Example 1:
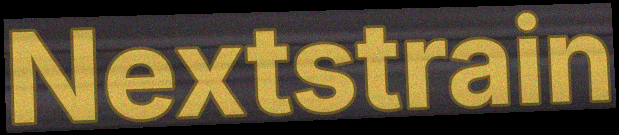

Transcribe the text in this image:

Nextstrain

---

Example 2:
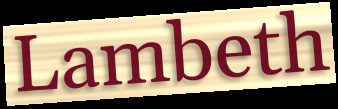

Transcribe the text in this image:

Lambeth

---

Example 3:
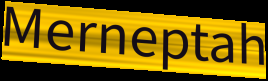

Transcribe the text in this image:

Merneptah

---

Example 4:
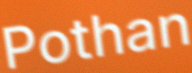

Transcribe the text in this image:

Pothan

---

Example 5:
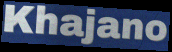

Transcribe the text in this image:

Khajano